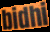
bidhi